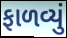
ફાળવ્યું